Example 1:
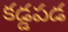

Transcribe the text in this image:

కడ్డపడ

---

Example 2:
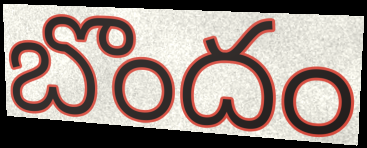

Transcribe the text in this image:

బొందం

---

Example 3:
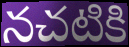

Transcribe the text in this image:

నచటికి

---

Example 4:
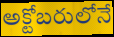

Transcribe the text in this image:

అక్టోబరులోనే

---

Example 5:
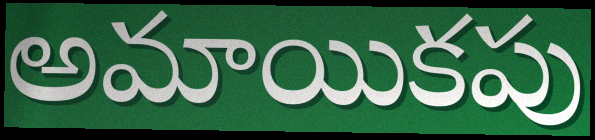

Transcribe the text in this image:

అమాయికపు